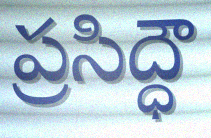
ప్రసిద్ధౌ